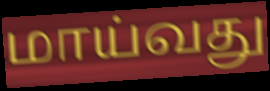
மாய்வது